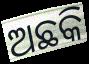
ଅଛକି